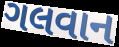
ગલવાન